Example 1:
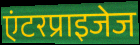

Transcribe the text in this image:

एंटरप्राइजेज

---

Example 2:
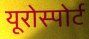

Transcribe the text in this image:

यूरोस्पोर्ट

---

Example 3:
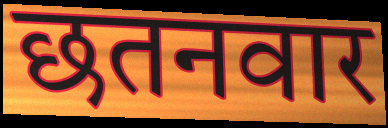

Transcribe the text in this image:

छतनवार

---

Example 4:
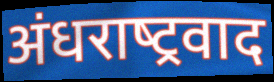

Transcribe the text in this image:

अंधराष्ट्रवाद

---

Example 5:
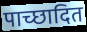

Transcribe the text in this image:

पाच्छादित